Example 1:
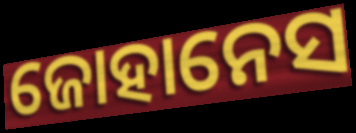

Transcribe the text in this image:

ଜୋହାନେସ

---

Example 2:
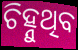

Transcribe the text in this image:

ଚିହ୍ନୁଥିବ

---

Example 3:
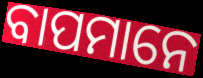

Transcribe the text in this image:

ବାପମାନେ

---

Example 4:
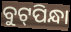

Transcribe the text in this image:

ବୁଟ୍‌ପିନ୍ଧା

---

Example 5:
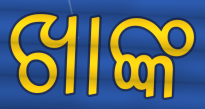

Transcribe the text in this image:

ଖାଙ୍କ